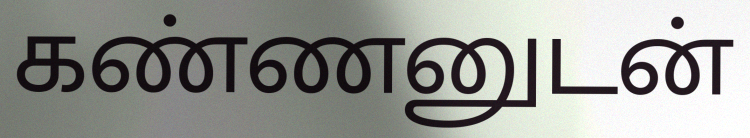
கண்ணனுடன்